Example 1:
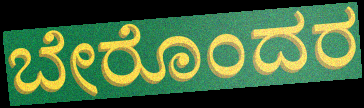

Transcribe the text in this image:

ಬೇರೊಂದರ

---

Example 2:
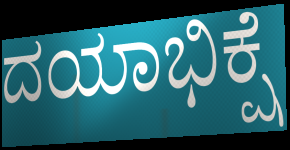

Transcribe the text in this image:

ದಯಾಭಿಕ್ಷೆ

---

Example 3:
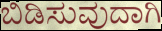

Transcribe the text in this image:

ಬಿಡಿಸುವುದಾಗಿ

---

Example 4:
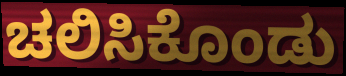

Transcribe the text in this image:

ಚಲಿಸಿಕೊಂಡು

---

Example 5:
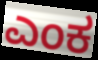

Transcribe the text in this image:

ಎಂಕ